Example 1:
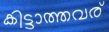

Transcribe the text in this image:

കിട്ടാത്തവര്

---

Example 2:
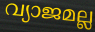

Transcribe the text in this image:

വ്യാജമല്ല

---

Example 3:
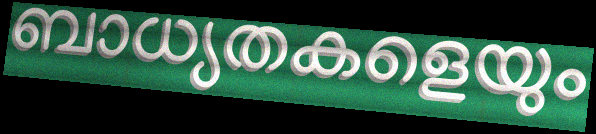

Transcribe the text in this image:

ബാധ്യതകളെയും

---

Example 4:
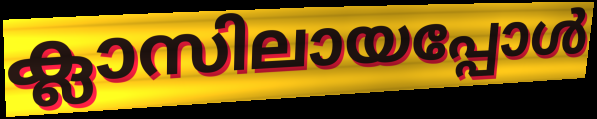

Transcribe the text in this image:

ക്ലാസിലായപ്പോൾ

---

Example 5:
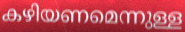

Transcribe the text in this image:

കഴിയണമെന്നുള്ള